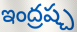
ఇంద్రష్చ